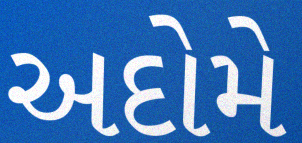
અદોમે